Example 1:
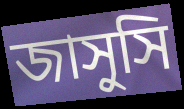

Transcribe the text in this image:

জাসুসি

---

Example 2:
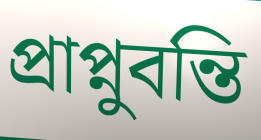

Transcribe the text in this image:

প্রাপ্নুবন্তি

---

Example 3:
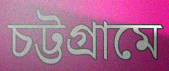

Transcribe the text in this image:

চট্টগ্রামে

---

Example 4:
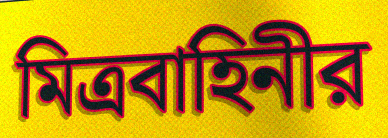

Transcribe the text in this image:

মিত্রবাহিনীর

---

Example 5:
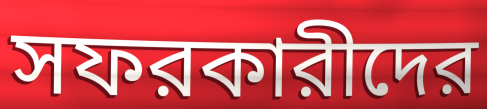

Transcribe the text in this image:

সফরকারীদের